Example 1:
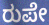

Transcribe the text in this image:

ರುಪೇ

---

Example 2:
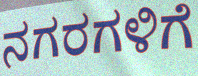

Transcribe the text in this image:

ನಗರಗಳಿಗೆ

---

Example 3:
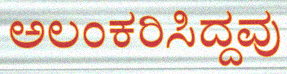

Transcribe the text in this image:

ಅಲಂಕರಿಸಿದ್ದವು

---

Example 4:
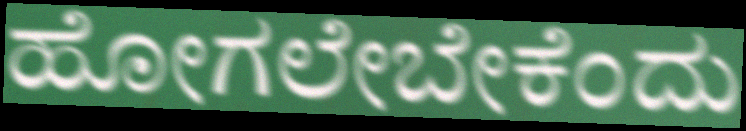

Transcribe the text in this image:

ಹೋಗಲೇಬೇಕೆಂದು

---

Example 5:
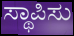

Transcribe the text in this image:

ಸ್ಥಾಪಿಸು